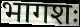
भागशः